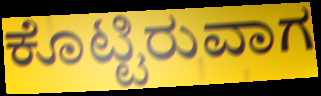
ಕೊಟ್ಟಿರುವಾಗ